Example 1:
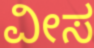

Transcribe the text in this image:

ವೀಸ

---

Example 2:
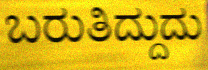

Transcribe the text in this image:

ಬರುತಿದ್ದುದು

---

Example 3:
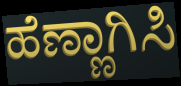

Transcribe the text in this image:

ಹೆಣ್ಣಾಗಿಸಿ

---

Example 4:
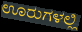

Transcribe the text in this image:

ಊರುಗಳಲ್ಲಿ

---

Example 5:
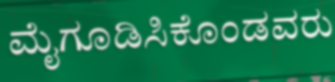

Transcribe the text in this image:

ಮೈಗೂಡಿಸಿಕೊಂಡವರು